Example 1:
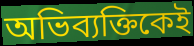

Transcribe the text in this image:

অভিব্যক্তিকেই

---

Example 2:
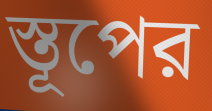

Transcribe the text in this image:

স্তূপের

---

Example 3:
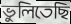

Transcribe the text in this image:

ভুলিতেছি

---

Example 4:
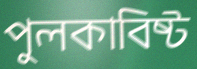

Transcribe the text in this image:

পুলকাবিষ্ট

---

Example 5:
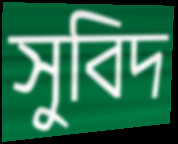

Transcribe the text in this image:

সুবিদ